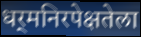
धर्मनिरपेक्षतेला